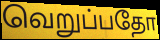
வெறுப்பதோ